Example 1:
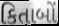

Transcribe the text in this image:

કિતાબોં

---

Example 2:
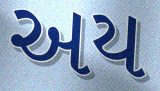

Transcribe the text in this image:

અય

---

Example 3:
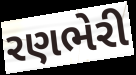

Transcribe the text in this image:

રણભેરી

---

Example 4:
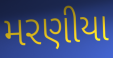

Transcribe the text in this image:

મરણીયા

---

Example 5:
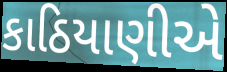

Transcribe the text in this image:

કાઠિયાણીએ